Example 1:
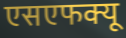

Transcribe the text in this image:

एसएफक्यू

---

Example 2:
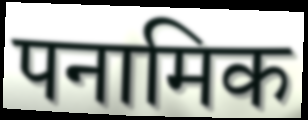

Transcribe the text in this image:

पनामिक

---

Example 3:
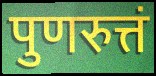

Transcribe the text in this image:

पुणरुत्तं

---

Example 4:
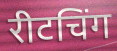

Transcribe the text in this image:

रीटचिंग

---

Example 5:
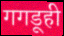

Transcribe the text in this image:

गगडूही